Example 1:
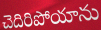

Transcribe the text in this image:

చెదిరిపోయాను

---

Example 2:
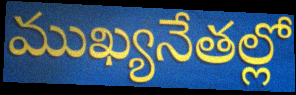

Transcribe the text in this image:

ముఖ్యనేతల్లో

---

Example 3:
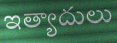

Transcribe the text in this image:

ఇత్యాదులు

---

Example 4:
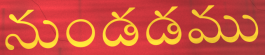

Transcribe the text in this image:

నుండడము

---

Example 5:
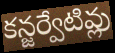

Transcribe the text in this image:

కన్జర్వేటివ్లు